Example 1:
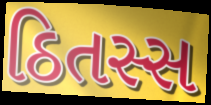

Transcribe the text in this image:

ઠિતસ્સ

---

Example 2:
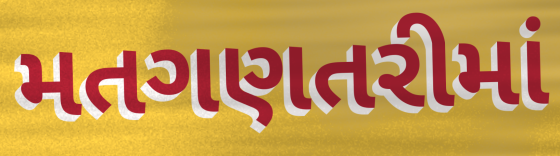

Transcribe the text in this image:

મતગણતરીમાં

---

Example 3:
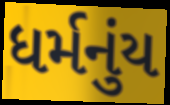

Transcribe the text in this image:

ધર્મનુંય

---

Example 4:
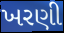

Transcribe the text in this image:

ખરણી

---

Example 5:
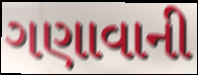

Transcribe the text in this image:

ગણાવાની